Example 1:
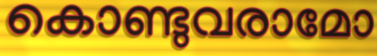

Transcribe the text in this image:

കൊണ്ടുവരാമോ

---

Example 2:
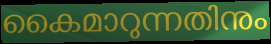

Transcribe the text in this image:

കൈമാറുന്നതിനും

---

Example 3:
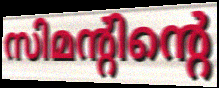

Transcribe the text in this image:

സിമന്റിന്റെ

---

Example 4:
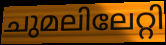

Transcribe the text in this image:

ചുമലിലേറ്റി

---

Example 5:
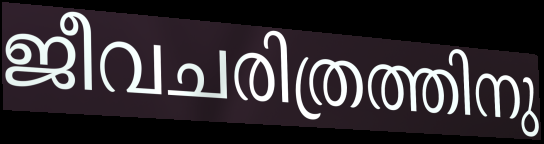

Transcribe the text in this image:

ജീവചരിത്രത്തിനു